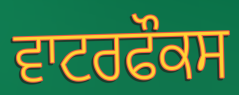
ਵਾਟਰਫੌਕਸ